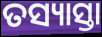
ତସ୍ୟାସ୍ତା